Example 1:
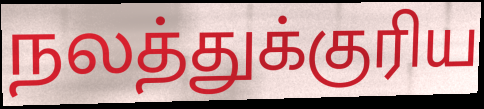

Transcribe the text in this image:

நலத்துக்குரிய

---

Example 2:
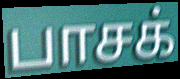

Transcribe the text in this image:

பாசக்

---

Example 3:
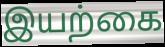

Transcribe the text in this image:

இயற்கை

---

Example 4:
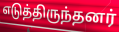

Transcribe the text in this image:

எடுத்திருந்தனர்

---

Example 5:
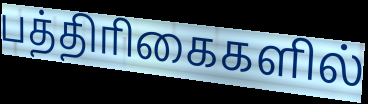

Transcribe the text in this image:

பத்திரிகைகளில்